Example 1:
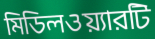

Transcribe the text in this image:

মিডিলওয়্যারটি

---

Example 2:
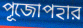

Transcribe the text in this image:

পূজোপহার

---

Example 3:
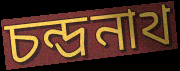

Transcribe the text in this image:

চন্দ্রনাথ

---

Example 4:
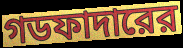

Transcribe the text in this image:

গডফাদারের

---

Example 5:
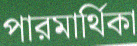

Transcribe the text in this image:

পারমার্থিকা